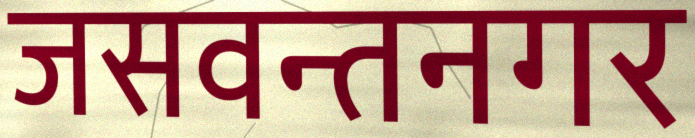
जसवन्तनगर